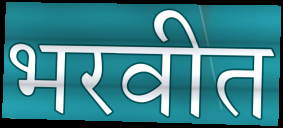
भरवीत